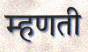
म्हणती